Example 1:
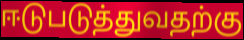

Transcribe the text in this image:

ஈடுபடுத்துவதற்கு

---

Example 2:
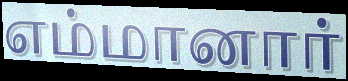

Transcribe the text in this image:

எம்மானார்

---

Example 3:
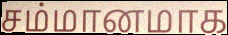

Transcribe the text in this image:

சம்மானமாக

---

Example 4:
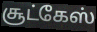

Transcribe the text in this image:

சூட்கேஸ்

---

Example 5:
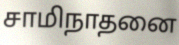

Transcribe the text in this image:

சாமிநாதனை